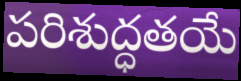
పరిశుద్ధతయే